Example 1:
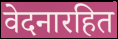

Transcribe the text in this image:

वेदनारहित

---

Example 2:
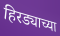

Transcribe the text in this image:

हिरड्याच्या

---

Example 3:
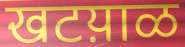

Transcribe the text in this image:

खटय़ाळ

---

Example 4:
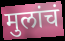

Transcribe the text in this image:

मुलांचं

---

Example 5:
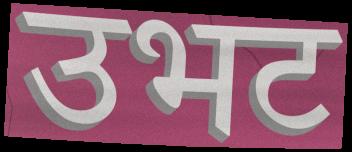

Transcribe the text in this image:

उभट